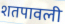
शतपावली